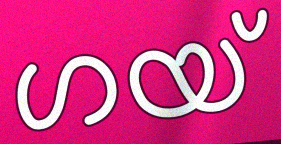
ഗയ്